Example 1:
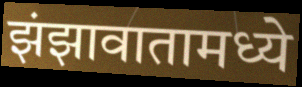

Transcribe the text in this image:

झंझावातामध्ये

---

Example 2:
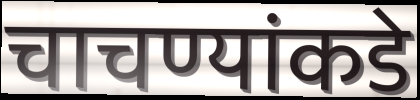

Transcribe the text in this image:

चाचण्यांकडे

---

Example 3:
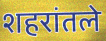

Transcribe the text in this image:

शहरांतले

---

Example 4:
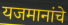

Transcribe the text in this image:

यजमानांचे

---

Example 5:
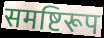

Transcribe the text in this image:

समष्टिरूप